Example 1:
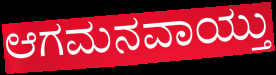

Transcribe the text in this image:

ಆಗಮನವಾಯ್ತು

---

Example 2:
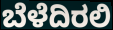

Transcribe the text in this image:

ಬೆಳೆದಿರಲಿ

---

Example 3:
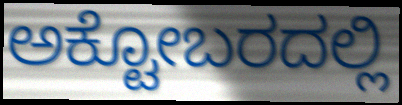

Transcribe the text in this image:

ಅಕ್ಟೋಬರದಲ್ಲಿ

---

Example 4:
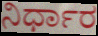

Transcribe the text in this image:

ನಿರ್ಧಾರ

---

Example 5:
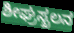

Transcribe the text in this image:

ಶೀಘ್ರಸ್ಖಲನ